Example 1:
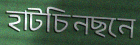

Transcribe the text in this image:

হাটচিনছনে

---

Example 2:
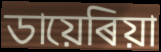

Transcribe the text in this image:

ডায়েৰিয়া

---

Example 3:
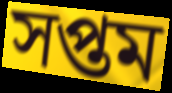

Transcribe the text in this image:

সপ্তম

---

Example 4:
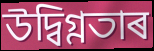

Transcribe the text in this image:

উদ্বিগ্নতাৰ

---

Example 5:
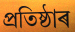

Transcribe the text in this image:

প্ৰতিষ্ঠাৰ